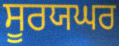
ਸੂਰਯਘਰ